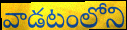
వాడటంలోని